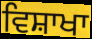
ਵਿਸ਼ਾਖਾ